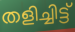
തളിച്ചിട്ട്